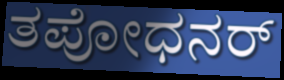
ತಪೋಧನರ್